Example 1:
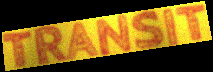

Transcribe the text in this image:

TRANSIT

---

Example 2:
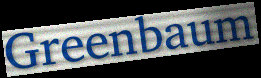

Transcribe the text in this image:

Greenbaum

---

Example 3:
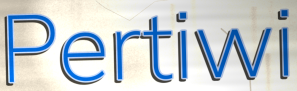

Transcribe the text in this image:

Pertiwi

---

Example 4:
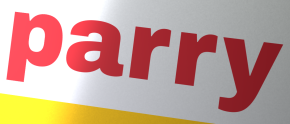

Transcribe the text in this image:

parry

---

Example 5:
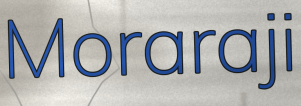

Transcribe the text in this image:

Moraraji